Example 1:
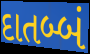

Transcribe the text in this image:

દાતબ્બં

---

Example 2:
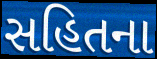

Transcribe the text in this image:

સહિતના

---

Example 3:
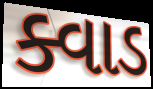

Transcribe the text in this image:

ક્વાડ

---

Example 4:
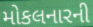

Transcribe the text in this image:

મોકલનારની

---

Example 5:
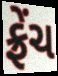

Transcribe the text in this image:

ફ્રેંચ